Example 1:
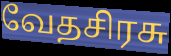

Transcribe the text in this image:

வேதசிரசு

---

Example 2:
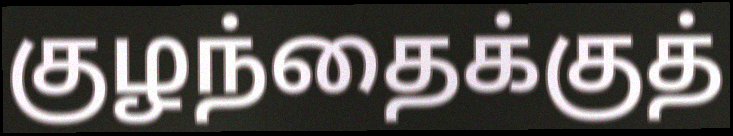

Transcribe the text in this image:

குழந்தைக்குத்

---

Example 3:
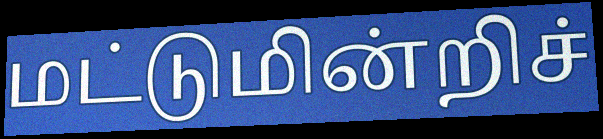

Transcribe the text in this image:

மட்டுமின்றிச்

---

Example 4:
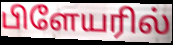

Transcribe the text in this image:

பிளேயரில்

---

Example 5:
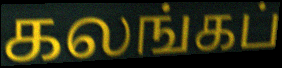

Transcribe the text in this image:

கலங்கப்